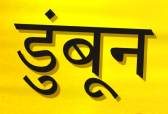
डुंबून